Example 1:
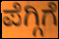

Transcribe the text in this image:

ಪೆಗ್ಗಿಗೆ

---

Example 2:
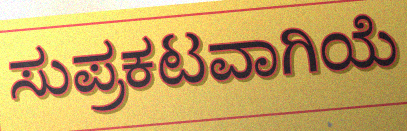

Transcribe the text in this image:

ಸುಪ್ರಕಟವಾಗಿಯೆ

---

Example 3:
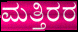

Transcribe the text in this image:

ಮತ್ತಿರರ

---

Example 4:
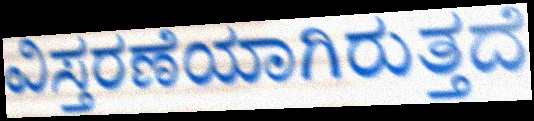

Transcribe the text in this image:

ವಿಸ್ತರಣೆಯಾಗಿರುತ್ತದೆ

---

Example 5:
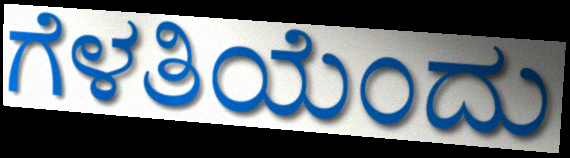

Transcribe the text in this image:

ಗೆಳತಿಯೆಂದು